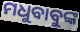
ମଧୁବାବୁଙ୍କ